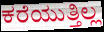
ಕರೆಯುತ್ತಿಲ್ಲ